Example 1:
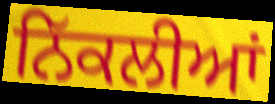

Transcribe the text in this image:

ਨਿੱਕਲੀਆਂ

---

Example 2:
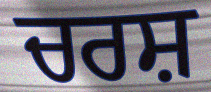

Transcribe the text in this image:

ਚਰਸ਼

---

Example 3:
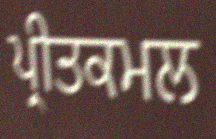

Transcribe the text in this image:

ਪ੍ਰੀਤਕਮਲ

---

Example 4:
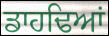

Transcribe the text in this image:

ਡਾਹਢਿਆਂ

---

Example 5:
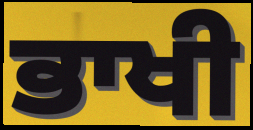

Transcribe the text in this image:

ਭਾਖੀ